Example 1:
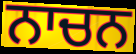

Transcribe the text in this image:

ਨਾਚਨ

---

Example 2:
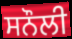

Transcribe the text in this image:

ਸਨੌਲੀ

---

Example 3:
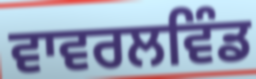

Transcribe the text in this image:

ਵਾਵਰਲਵਿੰਡ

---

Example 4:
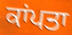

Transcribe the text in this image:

ਕਾਂਪਤਾ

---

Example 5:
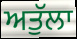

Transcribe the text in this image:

ਅਤੁੱਲਾ